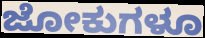
ಜೋಕುಗಳೂ